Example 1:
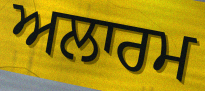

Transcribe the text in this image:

ਅਲਾਰਮ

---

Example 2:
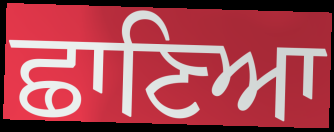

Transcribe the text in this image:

ਛਾਣਿਆ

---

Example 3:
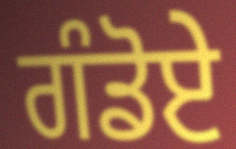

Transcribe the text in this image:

ਗੰਡੋਏ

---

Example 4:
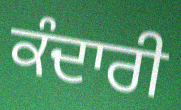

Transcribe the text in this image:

ਕੰਦਾਰੀ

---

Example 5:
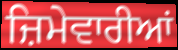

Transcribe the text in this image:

ਜ਼ਿਮੇਵਾਰੀਆਂ